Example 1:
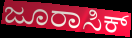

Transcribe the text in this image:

ಜೂರಾಸಿಕ್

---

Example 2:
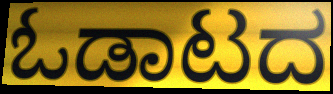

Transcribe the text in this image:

ಓಡಾಟದ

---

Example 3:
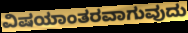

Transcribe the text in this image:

ವಿಷಯಾಂತರವಾಗುವುದು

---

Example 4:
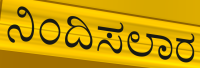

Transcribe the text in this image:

ನಿಂದಿಸಲಾರ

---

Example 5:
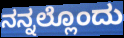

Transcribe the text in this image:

ನನ್ನಲ್ಲೊಂದು